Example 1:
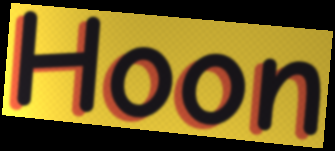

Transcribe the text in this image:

Hoon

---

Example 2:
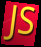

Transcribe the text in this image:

JS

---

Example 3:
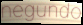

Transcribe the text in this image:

negundo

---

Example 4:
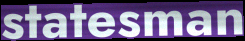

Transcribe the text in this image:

statesman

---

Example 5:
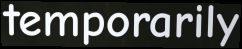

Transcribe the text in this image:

temporarily